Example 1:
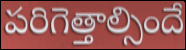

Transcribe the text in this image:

పరిగెత్తాల్సిందే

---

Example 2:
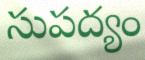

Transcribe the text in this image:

సుపద్యం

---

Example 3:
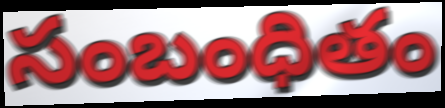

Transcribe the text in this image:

సంబంధితం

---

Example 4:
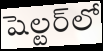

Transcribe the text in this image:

షెల్టర్‌లో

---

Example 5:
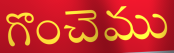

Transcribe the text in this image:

గొంచెము